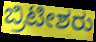
ಬ್ರಿಟೀಶರು